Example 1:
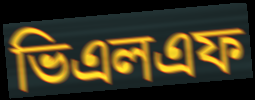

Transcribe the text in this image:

ভিএলএফ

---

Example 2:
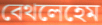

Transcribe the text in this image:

বেথলেহেম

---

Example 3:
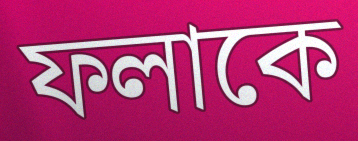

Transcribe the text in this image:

ফলাকে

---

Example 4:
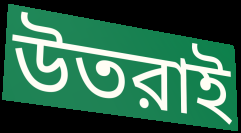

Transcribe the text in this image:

উতরাই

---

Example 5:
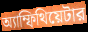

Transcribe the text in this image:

অ্যাম্ফিথিয়েটার